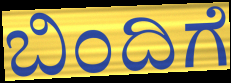
ಬಿಂದಿಗೆ